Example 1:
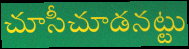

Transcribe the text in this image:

చూసీచూడనట్టు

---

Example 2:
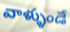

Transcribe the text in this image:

వాళ్ళుండే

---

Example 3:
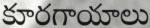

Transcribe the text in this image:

కూరగాయాలు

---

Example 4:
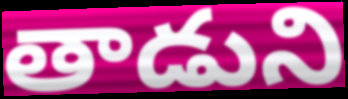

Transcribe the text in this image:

తాడుని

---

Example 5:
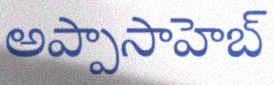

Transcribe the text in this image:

అప్పాసాహెబ్